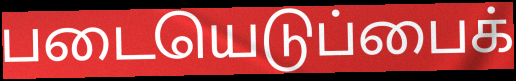
படையெடுப்பைக்